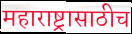
महाराष्ट्रासाठीच